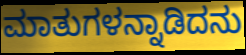
ಮಾತುಗಳನ್ನಾಡಿದನು